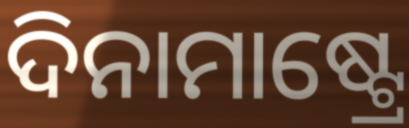
ଦିନାମାଷ୍ଟ୍ରେ